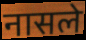
नासले